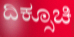
ದಿಕ್ಸೂಚಿ